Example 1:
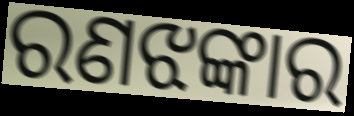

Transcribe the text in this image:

ରଣଝଙ୍କାର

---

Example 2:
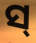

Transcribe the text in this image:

ସ୍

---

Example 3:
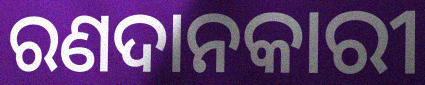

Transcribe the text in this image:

ରଣଦାନକାରୀ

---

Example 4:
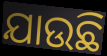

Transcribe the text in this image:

ଯାଉଛି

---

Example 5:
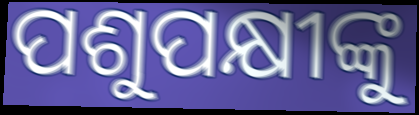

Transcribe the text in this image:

ପଶୁପକ୍ଷୀଙ୍କୁ